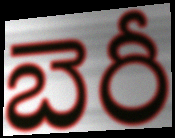
బెరీ